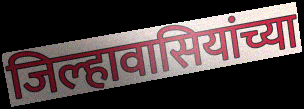
जिल्हावासियांच्या